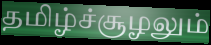
தமிழ்ச்சூழலும்